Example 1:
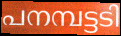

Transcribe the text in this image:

പനമ്പട്ടടി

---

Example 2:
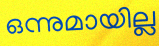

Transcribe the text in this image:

ഒന്നുമായില്ല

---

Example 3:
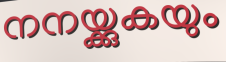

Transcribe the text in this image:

നനയ്ക്കുകയും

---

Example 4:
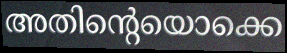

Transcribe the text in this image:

അതിന്റെയൊക്കെ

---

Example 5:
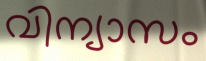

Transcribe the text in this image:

വിന്യാസം